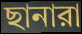
ছানারা